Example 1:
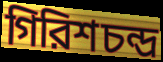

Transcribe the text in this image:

গিরিশচন্দ্র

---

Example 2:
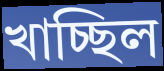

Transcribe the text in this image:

খাচ্ছিল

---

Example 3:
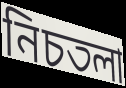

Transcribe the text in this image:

নিচতলা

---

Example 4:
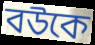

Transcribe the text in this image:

বউকে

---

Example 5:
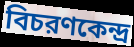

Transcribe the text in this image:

বিচরণকেন্দ্র